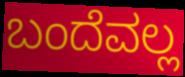
ಬಂದೆವಲ್ಲ